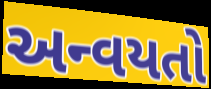
અન્વયતો